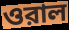
ওরাল